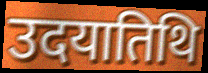
उदयातिथि